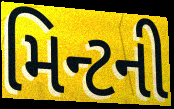
મિન્ટની